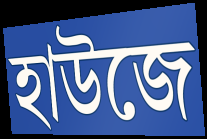
হাউজে